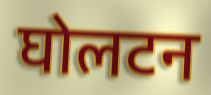
घोलटन